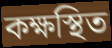
কক্ষস্থিত